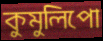
কুমুলিপো